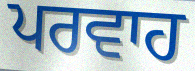
ਪਰਵਾਹ